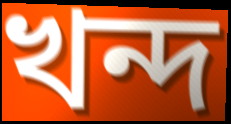
খন্দ